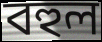
বহুল